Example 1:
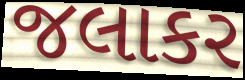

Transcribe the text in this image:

જલાકર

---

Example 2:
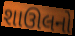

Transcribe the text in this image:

શાઊલનો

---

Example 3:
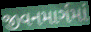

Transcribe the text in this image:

જીવનમાર્ગમાં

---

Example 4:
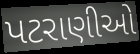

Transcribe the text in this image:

પટરાણીઓ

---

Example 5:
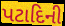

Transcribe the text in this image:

પટાદિની